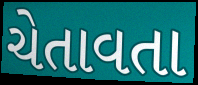
ચેતાવતા